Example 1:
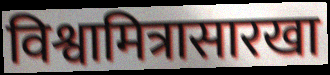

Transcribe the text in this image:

विश्वामित्रासारखा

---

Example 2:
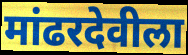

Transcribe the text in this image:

मांढरदेवीला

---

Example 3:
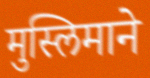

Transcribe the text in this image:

मुस्लिमाने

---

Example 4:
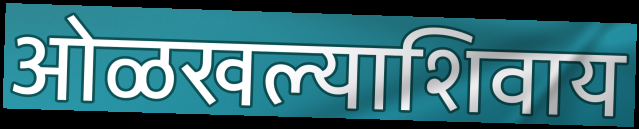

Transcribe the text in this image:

ओळखल्याशिवाय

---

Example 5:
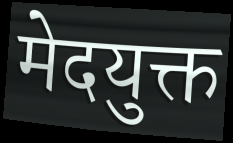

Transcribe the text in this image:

मेदयुक्त